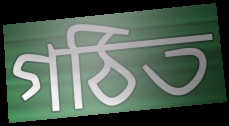
গঠিত